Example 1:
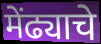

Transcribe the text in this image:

मेंढ्याचे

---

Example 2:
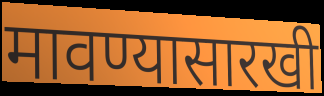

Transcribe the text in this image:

मावण्यासारखी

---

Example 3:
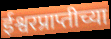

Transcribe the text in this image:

ईश्वरप्राप्तीच्या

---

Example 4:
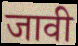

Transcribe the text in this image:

जावी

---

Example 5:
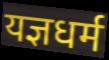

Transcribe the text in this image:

यज्ञधर्म